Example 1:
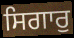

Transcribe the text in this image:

ਸਿਗਾਰੁ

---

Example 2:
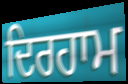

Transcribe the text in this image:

ਦਿਰਹਾਮ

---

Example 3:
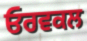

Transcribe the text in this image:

ਓਰਵਕਲ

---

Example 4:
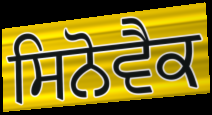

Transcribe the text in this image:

ਸਿਨੋਵੈਕ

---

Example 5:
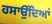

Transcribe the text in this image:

ਹਸਾਉਂਦਿਆਂ